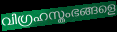
വിഗ്രഹസ്തംഭങ്ങളെ